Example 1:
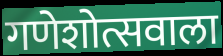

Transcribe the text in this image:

गणेशोत्सवाला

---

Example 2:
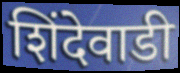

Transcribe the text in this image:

शिंदेवाडी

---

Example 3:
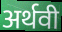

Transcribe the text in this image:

अर्थवी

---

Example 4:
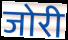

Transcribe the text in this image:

जोरी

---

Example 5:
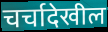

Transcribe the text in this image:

चर्चादेखील